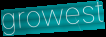
growest